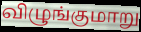
விழுங்குமாறு